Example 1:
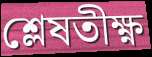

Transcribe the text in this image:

শ্লেষতীক্ষ্ণ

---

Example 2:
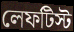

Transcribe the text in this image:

লেফটিস্ট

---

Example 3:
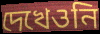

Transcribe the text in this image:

দেখেওনি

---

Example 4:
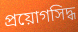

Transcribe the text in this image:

প্রয়োগসিদ্ধ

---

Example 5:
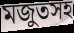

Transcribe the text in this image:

মজুতসহ